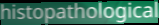
histopathological